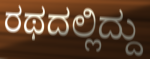
ರಥದಲ್ಲಿದ್ದು